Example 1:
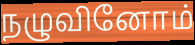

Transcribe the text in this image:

நழுவினோம்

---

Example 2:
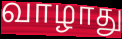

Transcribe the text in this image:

வாழாது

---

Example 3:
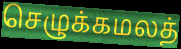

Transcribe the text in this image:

செழுக்கமலத்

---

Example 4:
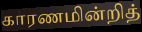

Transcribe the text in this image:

காரணமின்றித்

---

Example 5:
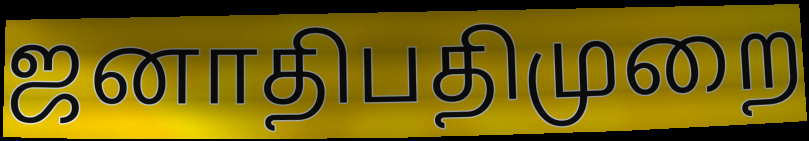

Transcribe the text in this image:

ஜனாதிபதிமுறை